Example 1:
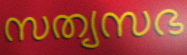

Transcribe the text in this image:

സത്യസഭ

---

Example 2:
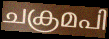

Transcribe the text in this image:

ചക്രമപി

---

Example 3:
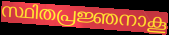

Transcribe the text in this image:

സ്ഥിതപ്രജ്ഞനാകൂ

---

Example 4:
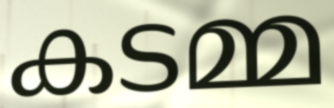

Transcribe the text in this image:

കടമ്മ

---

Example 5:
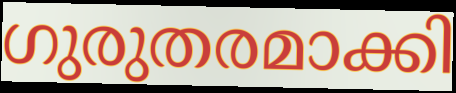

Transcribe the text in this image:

ഗുരുതരമാക്കി